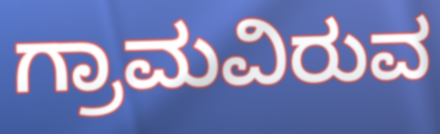
ಗ್ರಾಮವಿರುವ